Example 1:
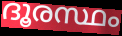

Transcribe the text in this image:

ദൂരസ്ഥം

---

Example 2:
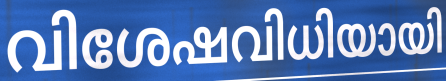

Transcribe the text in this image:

വിശേഷവിധിയായി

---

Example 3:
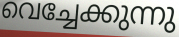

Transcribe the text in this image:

വെച്ചേക്കുന്നു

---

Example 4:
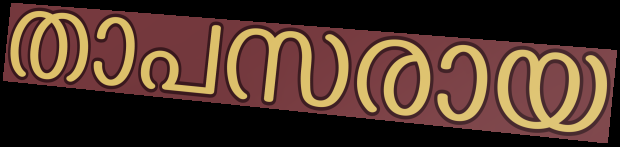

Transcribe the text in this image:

താപസരായ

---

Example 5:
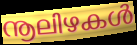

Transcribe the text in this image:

നൂലിഴകൾ